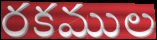
రకముల